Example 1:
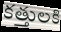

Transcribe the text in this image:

కత్తులకి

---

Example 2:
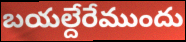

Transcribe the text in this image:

బయల్దేరేముందు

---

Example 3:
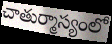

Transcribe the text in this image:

చాతుర్మాస్యంలో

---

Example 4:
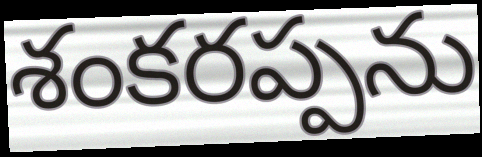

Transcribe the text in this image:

శంకరప్పను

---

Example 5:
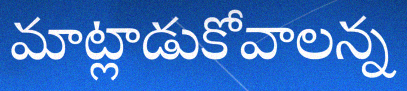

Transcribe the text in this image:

మాట్లాడుకోవాలన్న